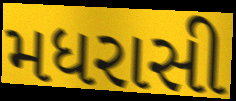
મધરાસી